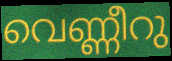
വെണ്ണീറു